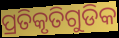
ପ୍ରତିକୃତିଗୁଡିକ